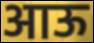
आऊ